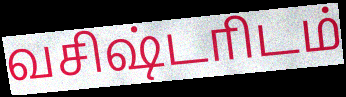
வசிஷ்டரிடம்